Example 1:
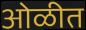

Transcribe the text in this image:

ओळीत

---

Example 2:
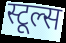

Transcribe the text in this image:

स्टूल्स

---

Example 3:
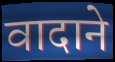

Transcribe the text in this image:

वादाने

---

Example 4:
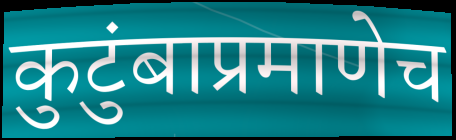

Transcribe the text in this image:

कुटुंबाप्रमाणेच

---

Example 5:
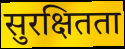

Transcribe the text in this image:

सुरक्षितता